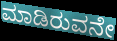
ಮಾಡಿರುವನೇ